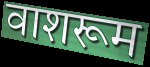
वाशरूम